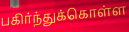
பகிர்ந்துக்கொள்ள